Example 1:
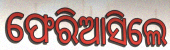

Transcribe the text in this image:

ଫେରିଆସିଲେ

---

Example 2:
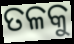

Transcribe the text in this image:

ତଳକୁ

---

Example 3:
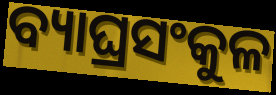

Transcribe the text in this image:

ବ୍ୟାଘ୍ରସଂକୁଳ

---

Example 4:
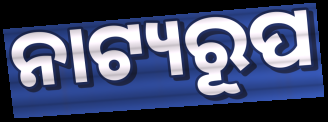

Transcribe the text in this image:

ନାଟ୍ୟରୂପ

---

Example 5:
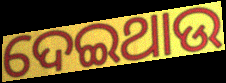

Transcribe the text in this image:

ଦେଇଥାଉ